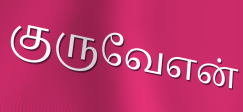
குருவேஎன்